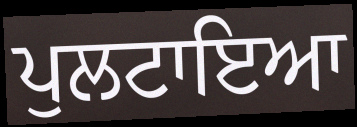
ਪੁਲਟਾਇਆ